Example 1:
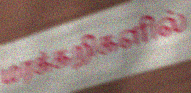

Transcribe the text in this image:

மரக்கறிகளில்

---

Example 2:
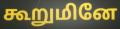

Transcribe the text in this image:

கூறுமினே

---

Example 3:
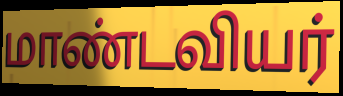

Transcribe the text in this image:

மாண்டவியர்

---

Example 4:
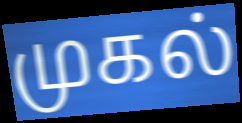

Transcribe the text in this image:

முகல்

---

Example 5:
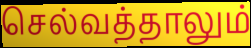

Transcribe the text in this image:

செல்வத்தாலும்